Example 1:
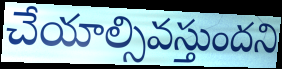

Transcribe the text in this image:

చేయాల్సివస్తుందని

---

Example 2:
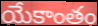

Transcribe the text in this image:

యేకాంతం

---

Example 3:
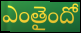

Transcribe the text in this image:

ఎంతైందో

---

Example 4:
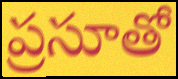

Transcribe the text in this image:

ప్రసూతో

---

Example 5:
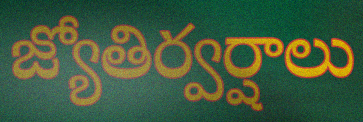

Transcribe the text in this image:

జ్యోతిర్వర్షాలు